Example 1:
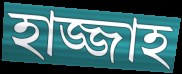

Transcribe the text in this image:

হাজ্জাহ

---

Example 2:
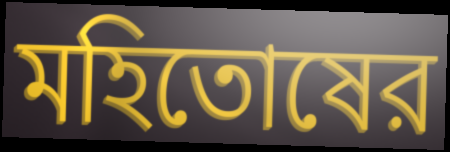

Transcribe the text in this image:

মহিতোষের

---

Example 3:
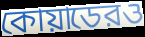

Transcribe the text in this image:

কোয়াডেরও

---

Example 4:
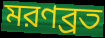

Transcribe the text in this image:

মরণব্রত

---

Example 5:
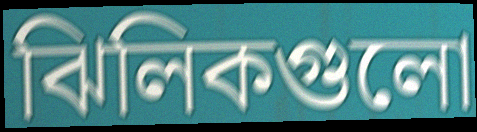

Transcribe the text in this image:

ঝিলিকগুলো